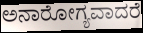
ಅನಾರೋಗ್ಯವಾದರೆ